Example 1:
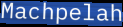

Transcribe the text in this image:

Machpelah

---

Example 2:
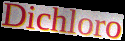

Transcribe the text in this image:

Dichloro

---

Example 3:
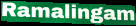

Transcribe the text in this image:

Ramalingam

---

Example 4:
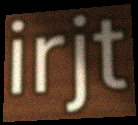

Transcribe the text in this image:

irjt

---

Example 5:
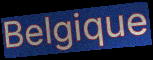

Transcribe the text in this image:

Belgique